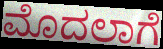
ಮೊದಲಾಗೆ